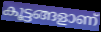
കൂട്ടങ്ങളാണ്